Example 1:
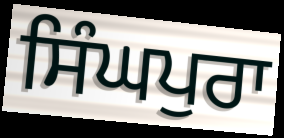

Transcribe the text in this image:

ਸਿੰਘਪੁਰਾ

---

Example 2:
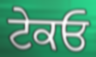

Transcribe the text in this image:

ਟੇਕਓ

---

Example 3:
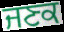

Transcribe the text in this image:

ਜਣਕ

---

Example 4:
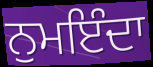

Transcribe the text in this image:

ਨੁਮਇੰਦਾ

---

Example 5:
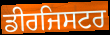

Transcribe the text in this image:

ਡੀਰਜਿਸਟਰ